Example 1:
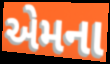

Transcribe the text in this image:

એમના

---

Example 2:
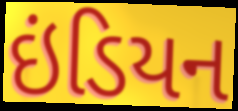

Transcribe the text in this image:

ઇંડિયન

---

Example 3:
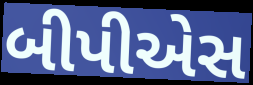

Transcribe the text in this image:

બીપીએસ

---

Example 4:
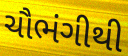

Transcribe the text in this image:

ચૌભંગીથી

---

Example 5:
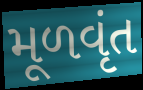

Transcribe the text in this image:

મૂળવૃંત